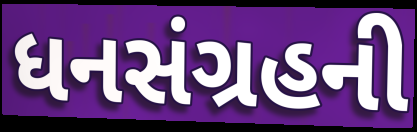
ધનસંગ્રહની